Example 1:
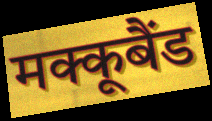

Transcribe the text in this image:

मक्कूबैंड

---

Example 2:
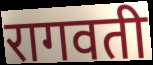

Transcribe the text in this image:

रागवती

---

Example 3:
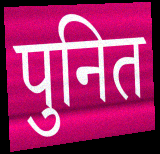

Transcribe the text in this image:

पुनित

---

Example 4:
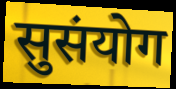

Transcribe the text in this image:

सुसंयोग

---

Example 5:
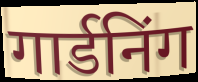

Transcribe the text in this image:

गार्डनिंग